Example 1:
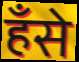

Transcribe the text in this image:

हँसे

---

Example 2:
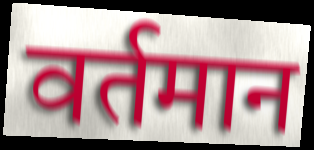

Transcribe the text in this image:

वर्तमान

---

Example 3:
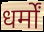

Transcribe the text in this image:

धर्मों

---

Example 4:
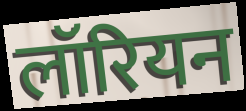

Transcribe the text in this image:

लॉरियन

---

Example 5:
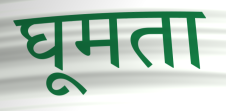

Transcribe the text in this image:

घूमता